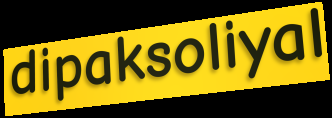
dipaksoliyal